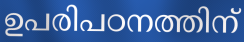
ഉപരിപഠനത്തിന്